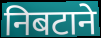
निबटाने